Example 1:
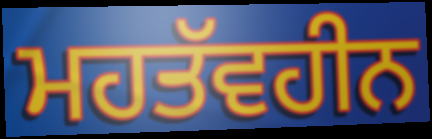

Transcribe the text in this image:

ਮਹਤੱਵਹੀਨ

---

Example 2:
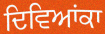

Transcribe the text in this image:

ਦਿਵਿਆਂਕਾ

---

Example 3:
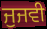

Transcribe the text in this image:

ਜੁਜਵੀ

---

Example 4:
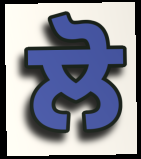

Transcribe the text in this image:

ਲੋ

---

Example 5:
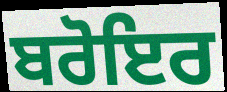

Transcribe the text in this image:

ਬਰੋਇਰ